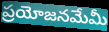
ప్రయోజనమేమీ